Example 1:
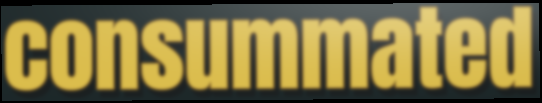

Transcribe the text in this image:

consummated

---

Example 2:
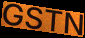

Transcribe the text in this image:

GSTN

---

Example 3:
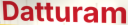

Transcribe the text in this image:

Datturam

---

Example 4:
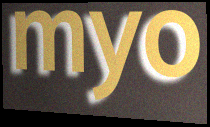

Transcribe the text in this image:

myo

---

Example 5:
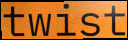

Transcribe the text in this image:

twist